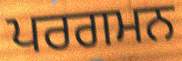
ਪਰਗਮਨ